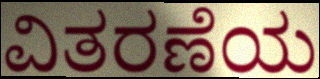
ವಿತರಣೆಯ